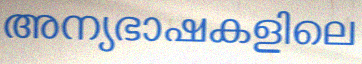
അന്യഭാഷകളിലെ